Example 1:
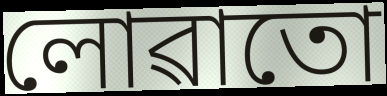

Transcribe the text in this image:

লোৱাতো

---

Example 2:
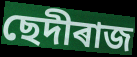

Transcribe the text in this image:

ছেদীৰাজ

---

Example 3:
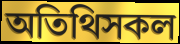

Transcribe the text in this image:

অতিথিসকল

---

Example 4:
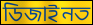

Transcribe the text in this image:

ডিজাইনত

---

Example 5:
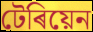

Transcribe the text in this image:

টেৰিয়েন